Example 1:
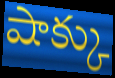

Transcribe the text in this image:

షాక్కు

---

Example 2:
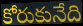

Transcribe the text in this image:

కోరుకునేది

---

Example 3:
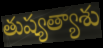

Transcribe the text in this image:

తుష్యత్యాశు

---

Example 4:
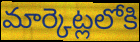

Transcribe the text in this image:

మార్కెట్లలోకి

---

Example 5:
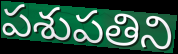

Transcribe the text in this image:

పశుపతిని